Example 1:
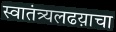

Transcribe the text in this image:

स्वातंत्र्यलढय़ाचा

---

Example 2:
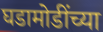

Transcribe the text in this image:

घडामोडींच्या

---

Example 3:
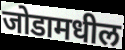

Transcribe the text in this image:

जोडामधील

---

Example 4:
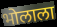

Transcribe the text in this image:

भोलाला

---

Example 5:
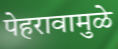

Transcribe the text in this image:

पेहरावामुळे